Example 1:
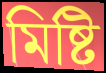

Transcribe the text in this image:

মিষ্টি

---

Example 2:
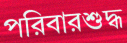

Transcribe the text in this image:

পরিবারশুদ্ধ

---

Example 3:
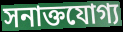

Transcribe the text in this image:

সনাক্তযোগ্য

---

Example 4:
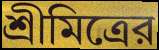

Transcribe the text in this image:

শ্রীমিত্রের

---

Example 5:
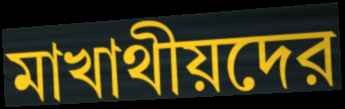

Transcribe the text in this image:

মাখাথীয়দের